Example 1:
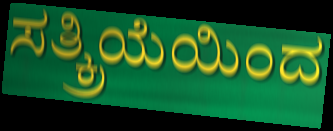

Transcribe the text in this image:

ಸತ್ಕ್ರಿಯೆಯಿಂದ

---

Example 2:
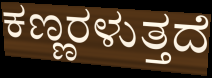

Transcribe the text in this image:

ಕಣ್ಣರಳುತ್ತದೆ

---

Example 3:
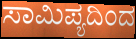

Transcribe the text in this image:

ಸಾಮಿಪ್ಯದಿಂದ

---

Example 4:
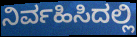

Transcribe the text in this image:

ನಿರ್ವಹಿಸಿದಲ್ಲಿ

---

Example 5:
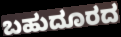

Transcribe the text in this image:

ಬಹುದೂರದ